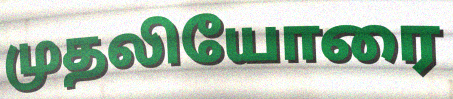
முதலியோரை